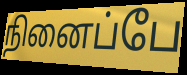
நினைப்பே